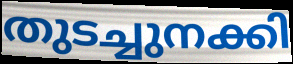
തുടച്ചുനക്കി